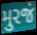
મુરજં